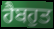
ਹੈਬਹੁਤ